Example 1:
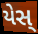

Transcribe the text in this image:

યેસ્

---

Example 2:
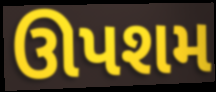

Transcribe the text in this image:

ઊપશમ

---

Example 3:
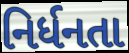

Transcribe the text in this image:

નિર્ધનતા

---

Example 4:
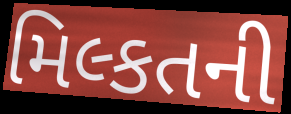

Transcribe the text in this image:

મિલ્કતની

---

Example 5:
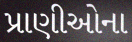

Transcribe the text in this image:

પ્રાણીઓના